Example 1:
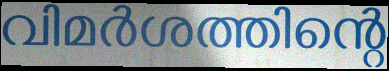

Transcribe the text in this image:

വിമർശത്തിന്റെ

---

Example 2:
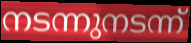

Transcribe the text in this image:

നടന്നുനടന്ന്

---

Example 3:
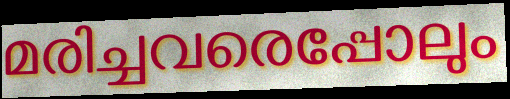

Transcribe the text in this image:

മരിച്ചവരെപ്പോലും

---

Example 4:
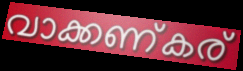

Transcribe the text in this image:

വാക്കണ്കര്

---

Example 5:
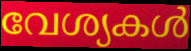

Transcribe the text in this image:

വേശ്യകൾ